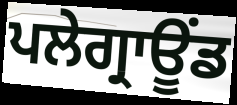
ਪਲੇਗ੍ਰਾਊਂਡ